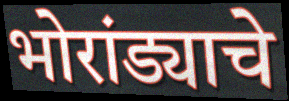
भोरांड्याचे